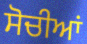
ਸੋਚੀਆਂ